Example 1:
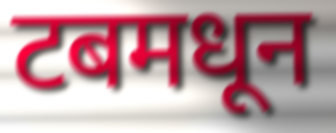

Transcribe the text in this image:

टबमधून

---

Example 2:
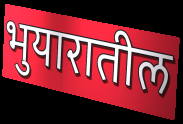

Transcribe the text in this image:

भुयारातील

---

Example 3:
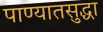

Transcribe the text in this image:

पाण्यातसुद्धा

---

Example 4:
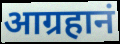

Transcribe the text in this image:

आग्रहानं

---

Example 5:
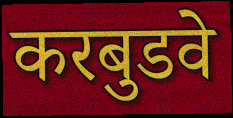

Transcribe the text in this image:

करबुडवे